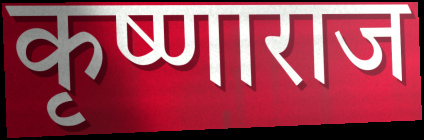
कृष्णाराज